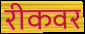
रीकवर